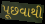
પૂછવાથી